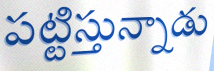
పట్టిస్తున్నాడు